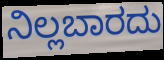
ನಿಲ್ಲಬಾರದು